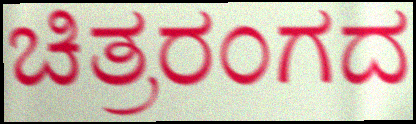
ಚಿತ್ರರಂಗದ